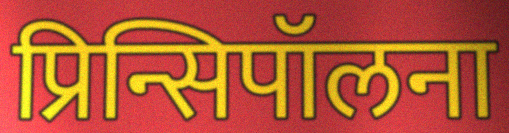
प्रिन्सिपॉलना